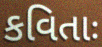
કવિતાઃ